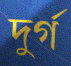
দুৰ্গ